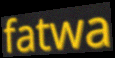
fatwa